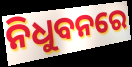
ନିଧୁବନରେ